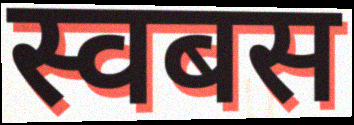
स्वबस